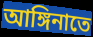
আঙ্গিনাতে